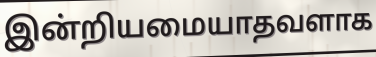
இன்றியமையாதவளாக